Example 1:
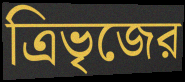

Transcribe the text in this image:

ত্রিভৃজের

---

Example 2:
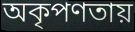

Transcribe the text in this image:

অকৃপণতায়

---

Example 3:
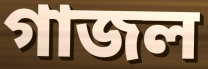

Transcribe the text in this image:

গাজল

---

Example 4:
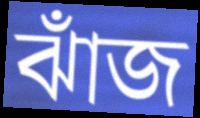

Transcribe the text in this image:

ঝাঁজ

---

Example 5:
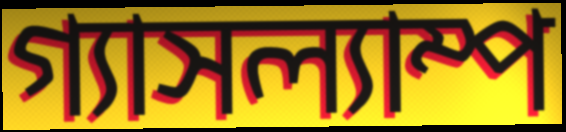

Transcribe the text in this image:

গ্যাসল্যাম্প